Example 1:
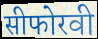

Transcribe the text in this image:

सीफोरवी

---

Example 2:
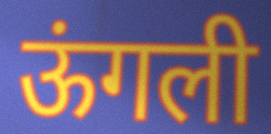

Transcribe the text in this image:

ऊंगली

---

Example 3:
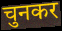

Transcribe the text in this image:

चुनकर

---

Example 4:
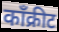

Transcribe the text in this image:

काँक्रीट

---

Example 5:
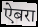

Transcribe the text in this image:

ऐबरा